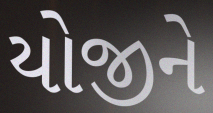
યોજીને